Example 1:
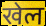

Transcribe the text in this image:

खेल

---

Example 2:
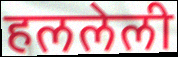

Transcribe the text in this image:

हललेली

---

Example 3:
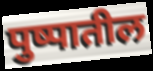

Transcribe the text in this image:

पुष्पातील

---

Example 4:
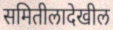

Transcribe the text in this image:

समितीलादेखील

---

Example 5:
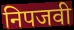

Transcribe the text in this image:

निपजवी